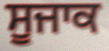
ਸੂਜਾਕ